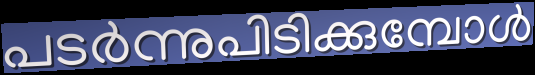
പടർന്നുപിടിക്കുമ്പോൾ